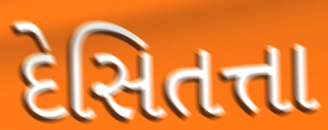
દેસિતત્તા